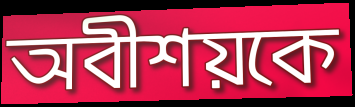
অবীশয়কে